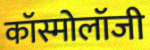
कॉस्मोलॉजी